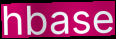
hbase